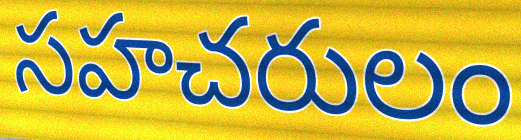
సహచరులం